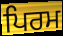
ਪਿਰਮ